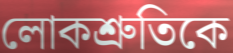
লোকশ্রুতিকে